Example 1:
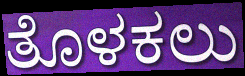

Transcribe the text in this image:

ತೊಳಕಲು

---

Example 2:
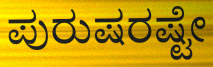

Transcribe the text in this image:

ಪುರುಷರಷ್ಟೇ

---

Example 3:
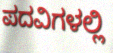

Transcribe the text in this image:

ಪದವಿಗಳಲ್ಲಿ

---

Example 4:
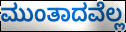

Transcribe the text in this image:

ಮುಂತಾದವೆಲ್ಲ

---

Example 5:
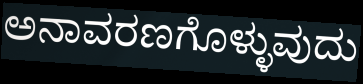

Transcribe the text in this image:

ಅನಾವರಣಗೊಳ್ಳುವುದು